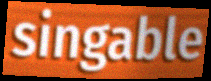
singable